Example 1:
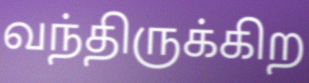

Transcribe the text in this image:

வந்திருக்கிற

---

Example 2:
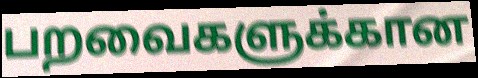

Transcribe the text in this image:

பறவைகளுக்கான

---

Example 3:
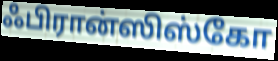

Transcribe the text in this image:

ஃபிரான்ஸிஸ்கோ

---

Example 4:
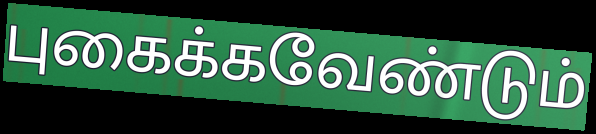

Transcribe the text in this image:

புகைக்கவேண்டும்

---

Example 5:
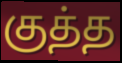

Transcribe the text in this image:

குத்த